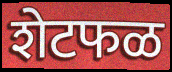
शेटफळ